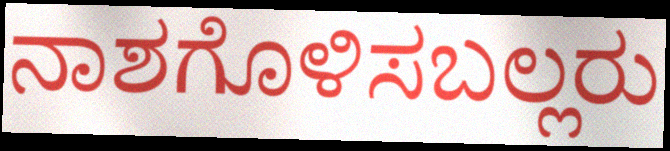
ನಾಶಗೊಳಿಸಬಲ್ಲರು